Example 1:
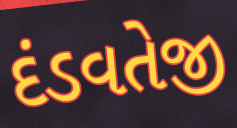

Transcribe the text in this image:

દંડવતેજી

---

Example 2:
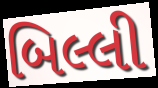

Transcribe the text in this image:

બિલ્લી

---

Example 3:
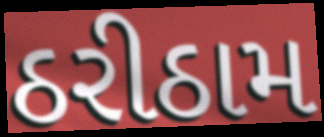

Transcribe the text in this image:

ઠરીઠામ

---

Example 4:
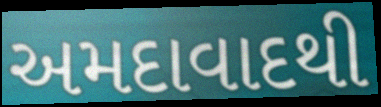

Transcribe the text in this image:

અમદાવાદથી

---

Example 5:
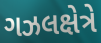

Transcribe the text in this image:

ગઝલક્ષેત્રે